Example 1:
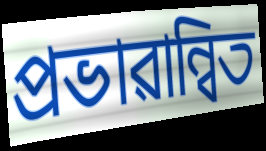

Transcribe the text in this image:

প্ৰভাৱান্বিত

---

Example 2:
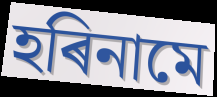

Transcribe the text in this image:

হৰিনামে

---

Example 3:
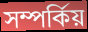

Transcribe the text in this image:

সম্পৰ্কিয়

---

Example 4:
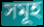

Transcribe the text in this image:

সমূহ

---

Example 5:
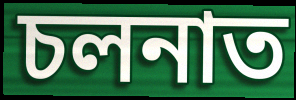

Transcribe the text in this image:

চলনাত